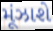
મૂંઝાશે